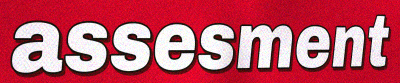
assesment